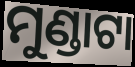
ମୁଣ୍ଡାଟା